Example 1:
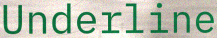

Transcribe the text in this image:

Underline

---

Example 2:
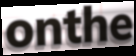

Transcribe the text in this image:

onthe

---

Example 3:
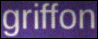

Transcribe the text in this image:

griffon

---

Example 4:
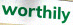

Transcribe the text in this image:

worthily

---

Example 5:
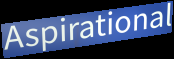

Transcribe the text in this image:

Aspirational